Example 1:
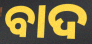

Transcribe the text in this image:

ବାଦ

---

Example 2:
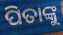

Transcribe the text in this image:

ପିତାଙ୍କୁ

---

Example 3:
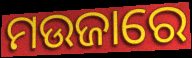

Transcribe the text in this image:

ମଉଜାରେ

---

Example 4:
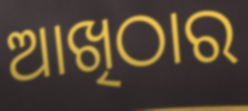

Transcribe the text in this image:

ଆଖିଠାର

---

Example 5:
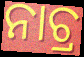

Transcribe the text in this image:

ନାଚ୍ର